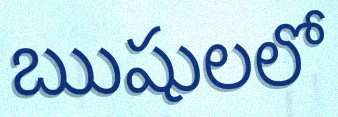
ఋషులలో